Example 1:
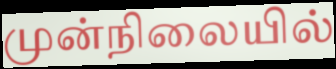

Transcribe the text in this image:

முன்நிலையில்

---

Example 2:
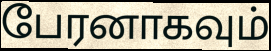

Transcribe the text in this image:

பேரனாகவும்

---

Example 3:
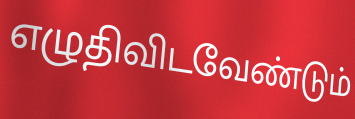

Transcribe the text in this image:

எழுதிவிடவேண்டும்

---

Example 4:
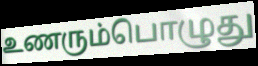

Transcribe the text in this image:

உணரும்பொழுது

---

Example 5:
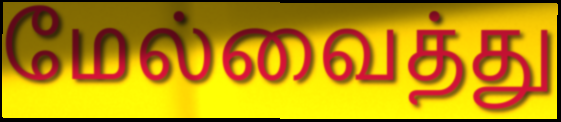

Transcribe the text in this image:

மேல்வைத்து